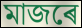
মাজৰে